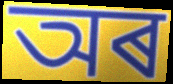
অৰ